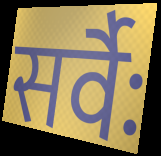
सर्वैः